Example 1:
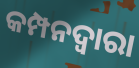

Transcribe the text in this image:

କମ୍ପନଦ୍ୱାରା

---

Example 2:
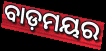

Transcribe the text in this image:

ବାଡ଼ମୟର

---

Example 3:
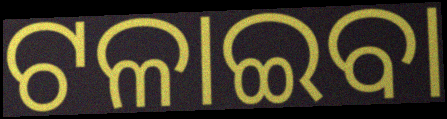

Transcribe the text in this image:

ଟଳାଇବା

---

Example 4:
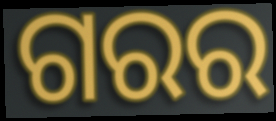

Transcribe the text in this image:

ଗରର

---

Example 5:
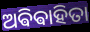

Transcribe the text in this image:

ଅଵିଵାହିତା